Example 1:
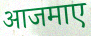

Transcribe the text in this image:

आजमाए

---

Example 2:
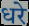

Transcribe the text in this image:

धरे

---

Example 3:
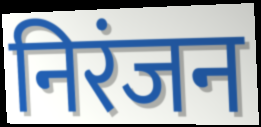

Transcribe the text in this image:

निरंजन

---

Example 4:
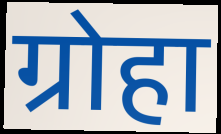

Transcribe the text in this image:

ग्रोहा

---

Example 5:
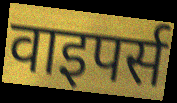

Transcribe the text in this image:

वाइपर्स